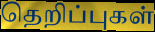
தெறிப்புகள்